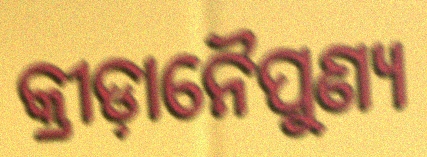
କ୍ରୀଡ଼ାନୈପୁଣ୍ୟ